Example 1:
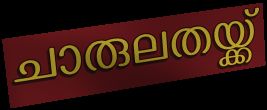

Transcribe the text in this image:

ചാരുലതയ്ക്ക്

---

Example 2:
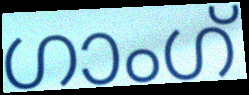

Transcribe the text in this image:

ഗാംഗ്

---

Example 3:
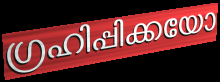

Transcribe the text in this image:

ഗ്രഹിപ്പിക്കയോ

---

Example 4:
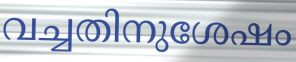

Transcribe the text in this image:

വച്ചതിനുശേഷം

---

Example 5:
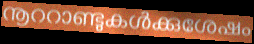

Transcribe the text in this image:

നൂററാണ്ടുകൾക്കുശേഷം